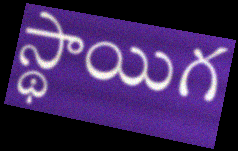
స్థాయిగ